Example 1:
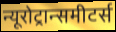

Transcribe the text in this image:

न्यूरोट्रान्समीटर्स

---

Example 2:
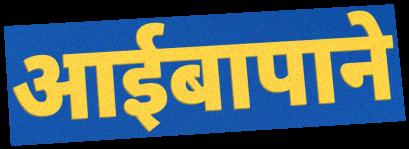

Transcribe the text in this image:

आईबापाने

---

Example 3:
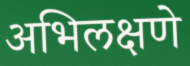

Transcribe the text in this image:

अभिलक्षणे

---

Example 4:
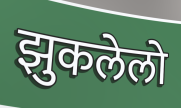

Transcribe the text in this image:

झुकलेलो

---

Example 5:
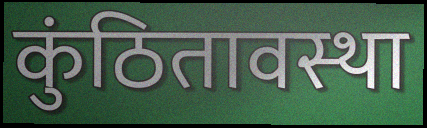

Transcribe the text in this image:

कुंठितावस्था